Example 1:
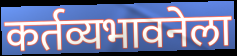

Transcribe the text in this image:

कर्तव्यभावनेला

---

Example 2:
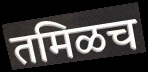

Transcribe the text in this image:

तमिळच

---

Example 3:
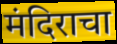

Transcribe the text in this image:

मंदिराचा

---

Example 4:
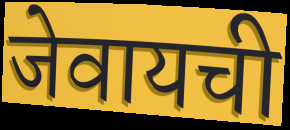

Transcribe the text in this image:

जेवायची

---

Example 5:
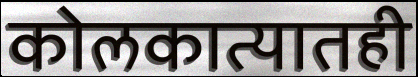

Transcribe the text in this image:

कोलकात्यातही